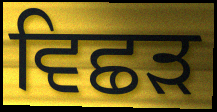
ਵਿਛਡ਼